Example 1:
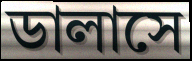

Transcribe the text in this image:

ডালাসে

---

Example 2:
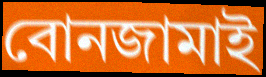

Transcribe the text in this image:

বোনজামাই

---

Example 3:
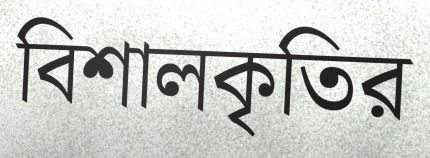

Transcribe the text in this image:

বিশালকৃতির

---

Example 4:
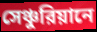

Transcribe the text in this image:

সেঞ্চুরিয়ানে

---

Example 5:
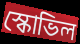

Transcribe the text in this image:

স্কোভিল